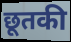
छूतकी